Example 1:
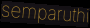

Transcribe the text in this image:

semparuthi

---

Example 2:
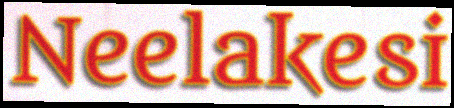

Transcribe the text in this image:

Neelakesi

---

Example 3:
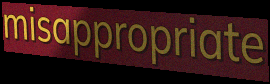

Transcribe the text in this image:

misappropriate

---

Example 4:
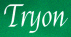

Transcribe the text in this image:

Tryon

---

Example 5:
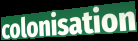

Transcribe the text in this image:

colonisation